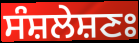
ਸੰਸ਼ਲੇਸ਼ਣਃ